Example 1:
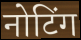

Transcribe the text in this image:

नोटिंग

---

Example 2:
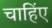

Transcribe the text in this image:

चाहिंए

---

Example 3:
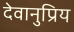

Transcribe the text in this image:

देवानुप्रिय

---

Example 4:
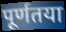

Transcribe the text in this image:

पूर्णतया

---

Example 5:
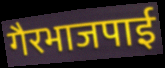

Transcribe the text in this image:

गैरभाजपाई